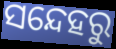
ସନ୍ଦେହରୁ